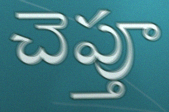
చెప్తూ